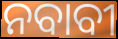
ନବାବୀ